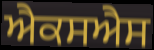
ਐਕਸਐਸ